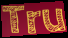
Tru